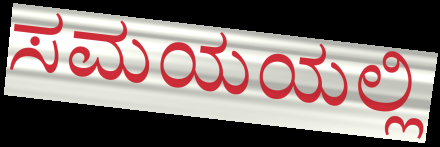
ಸಮಯಯಲ್ಲಿ